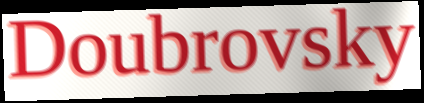
Doubrovsky